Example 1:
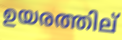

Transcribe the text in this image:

ഉയരത്തില്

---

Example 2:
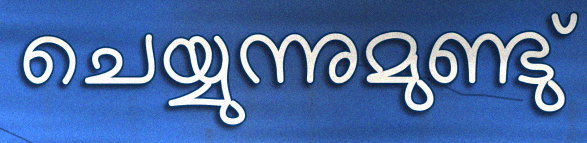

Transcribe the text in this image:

ചെയ്യുന്നുമുണ്ടു്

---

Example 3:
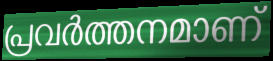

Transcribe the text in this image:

പ്രവർത്തനമാണ്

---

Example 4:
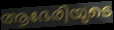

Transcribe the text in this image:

ആഭേരിയുടെ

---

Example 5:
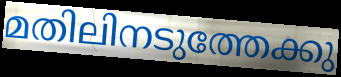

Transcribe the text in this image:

മതിലിനടുത്തേക്കു